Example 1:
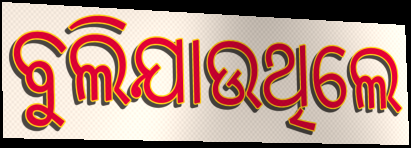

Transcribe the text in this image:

ବୁଲିଯାଉଥିଲେ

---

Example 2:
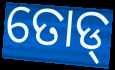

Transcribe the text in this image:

ତୋଡ୍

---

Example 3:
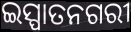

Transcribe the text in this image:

ଇସ୍ପାତନଗରୀ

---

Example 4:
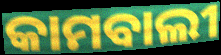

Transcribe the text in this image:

କାମବାଲୀ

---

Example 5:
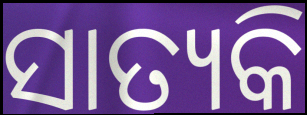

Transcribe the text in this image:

ସାତ୍ଯକି